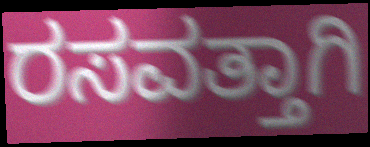
ರಸವತ್ತಾಗಿ